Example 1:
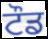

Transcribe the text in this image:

ਟੌਡ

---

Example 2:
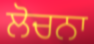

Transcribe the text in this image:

ਲੋਚਨਾ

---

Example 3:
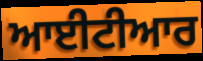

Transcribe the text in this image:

ਆਈਟੀਆਰ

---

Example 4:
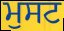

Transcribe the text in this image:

ਮੁਸਟ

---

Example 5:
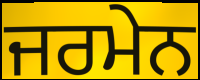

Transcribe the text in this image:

ਜਰਮੇਨ